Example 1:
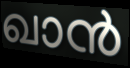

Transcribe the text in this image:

ഖാൻ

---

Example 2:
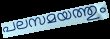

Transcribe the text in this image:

പലസമയത്തും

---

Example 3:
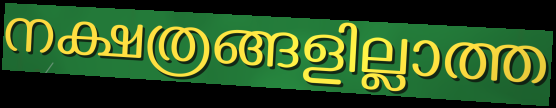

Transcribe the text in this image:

നക്ഷത്രങ്ങളില്ലാത്ത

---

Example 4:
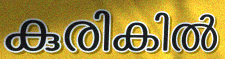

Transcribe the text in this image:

കുരികിൽ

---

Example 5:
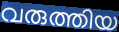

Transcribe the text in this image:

വരുത്തിയ